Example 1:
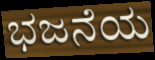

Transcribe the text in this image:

ಭಜನೆಯ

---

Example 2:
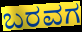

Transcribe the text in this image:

ಬರವಗ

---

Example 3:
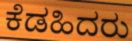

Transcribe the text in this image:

ಕೆಡಹಿದರು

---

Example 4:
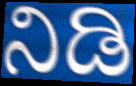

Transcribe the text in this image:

ನಿಡಿ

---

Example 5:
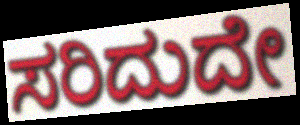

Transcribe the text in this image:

ಸರಿದುದೇ